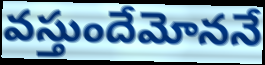
వస్తుందేమోననే